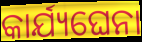
କାର୍ଯ୍ୟଘେନା